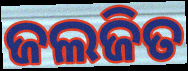
ଜଲଜିତ